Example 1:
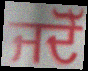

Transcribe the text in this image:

ਜਦੋੱ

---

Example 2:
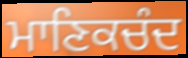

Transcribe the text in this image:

ਮਾਣਿਕਚੰਦ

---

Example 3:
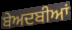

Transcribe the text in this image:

ਬੇਅਦਬੀਆਂ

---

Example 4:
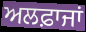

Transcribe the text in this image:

ਅਲਫ਼ਾਜਾਂ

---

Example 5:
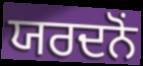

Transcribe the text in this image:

ਯਰਦਨੋਂ